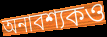
অনাবশ্যকও